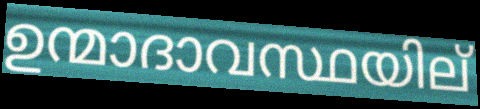
ഉന്മാദാവസ്ഥയില്